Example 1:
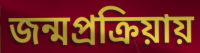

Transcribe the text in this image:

জন্মপ্রক্রিয়ায়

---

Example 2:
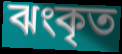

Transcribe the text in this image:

ঝংকৃত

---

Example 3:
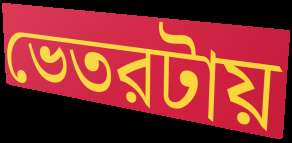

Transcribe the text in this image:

ভেতরটায়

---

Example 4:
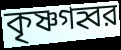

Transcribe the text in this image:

কৃষ্ণগহ্বর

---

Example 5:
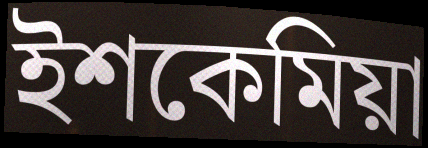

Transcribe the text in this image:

ইশকেমিয়া